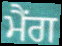
ਮੈਂਗ